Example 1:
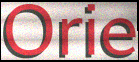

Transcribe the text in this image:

Orie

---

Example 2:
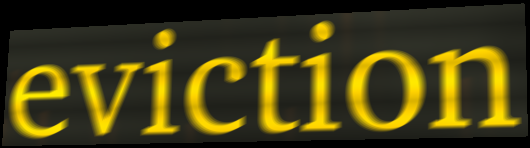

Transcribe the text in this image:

eviction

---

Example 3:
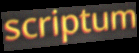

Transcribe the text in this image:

scriptum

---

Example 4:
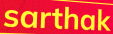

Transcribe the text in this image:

sarthak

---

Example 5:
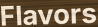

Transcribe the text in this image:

Flavors